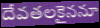
దేవతలకైననూ